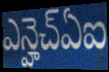
ఎన్హెచ్ఏఐ